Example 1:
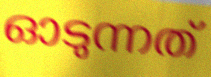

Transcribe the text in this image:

ഓടുന്നത്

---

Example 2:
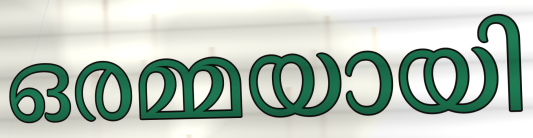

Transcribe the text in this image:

ഒരമ്മയായി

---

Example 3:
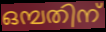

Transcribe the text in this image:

ഒമ്പതിന്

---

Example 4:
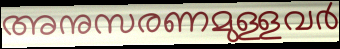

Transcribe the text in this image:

അനുസരണമുള്ളവർ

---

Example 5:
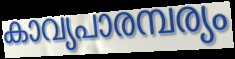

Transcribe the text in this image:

കാവ്യപാരമ്പര്യം